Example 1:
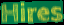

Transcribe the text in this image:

Hires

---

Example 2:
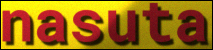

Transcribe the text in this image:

nasuta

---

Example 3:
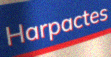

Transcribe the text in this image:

Harpactes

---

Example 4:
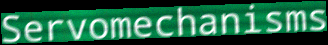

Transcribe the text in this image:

Servomechanisms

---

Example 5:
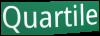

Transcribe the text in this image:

Quartile